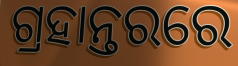
ଗ୍ରହାନ୍ତରରେ